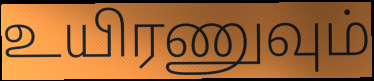
உயிரணுவும்